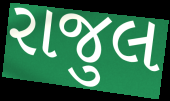
રાજુલ